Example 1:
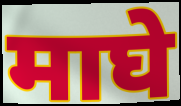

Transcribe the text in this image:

माघे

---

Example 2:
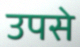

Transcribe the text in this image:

उपसे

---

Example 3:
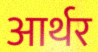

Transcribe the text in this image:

आर्थर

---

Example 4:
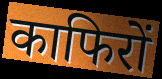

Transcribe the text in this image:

काफिरों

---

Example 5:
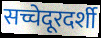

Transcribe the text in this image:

सच्चेदूरदर्शी